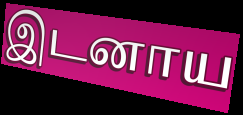
இடனாய